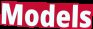
Models